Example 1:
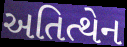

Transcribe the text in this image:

અતિત્થેન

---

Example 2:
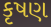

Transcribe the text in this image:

કૃષણ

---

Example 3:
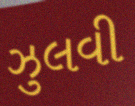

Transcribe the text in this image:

ઝુલવી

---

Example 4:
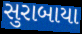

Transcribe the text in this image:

સુરાબાયા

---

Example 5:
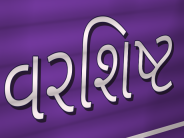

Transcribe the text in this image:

વરશિષ્ટ